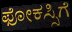
ಫೋಕಸ್ಸಿಗೆ